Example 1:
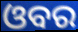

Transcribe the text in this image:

ଓବର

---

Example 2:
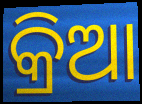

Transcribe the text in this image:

କ୍ରିଆ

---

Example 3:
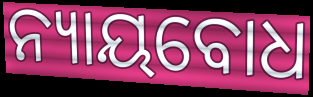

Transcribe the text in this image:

ନ୍ୟାୟବୋଧ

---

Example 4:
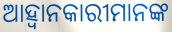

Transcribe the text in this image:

ଆହ୍ଵାନକାରୀମାନଙ୍କ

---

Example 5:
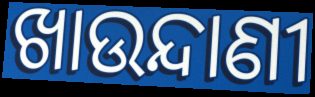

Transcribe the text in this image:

ଖାଉନ୍ଦାଣୀ